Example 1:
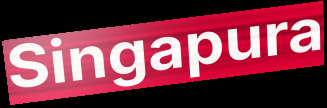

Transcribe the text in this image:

Singapura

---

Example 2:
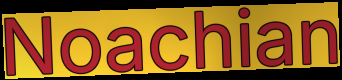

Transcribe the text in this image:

Noachian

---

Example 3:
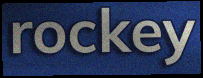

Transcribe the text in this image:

rockey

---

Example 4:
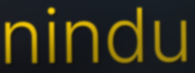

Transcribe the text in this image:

nindu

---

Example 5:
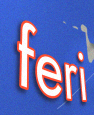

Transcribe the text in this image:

feri